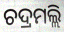
ଚଦ୍ରମଲ୍ଲି